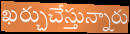
ఖర్చుచేస్తున్నారు